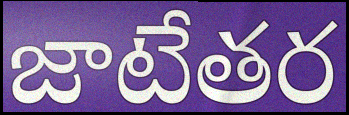
జాటేతర